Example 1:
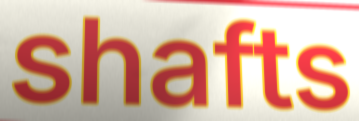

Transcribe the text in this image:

shafts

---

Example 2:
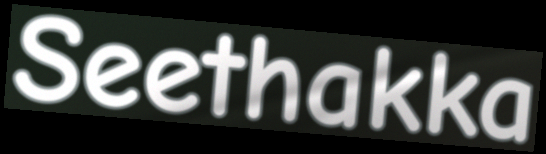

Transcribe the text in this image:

Seethakka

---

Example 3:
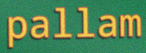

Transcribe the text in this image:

pallam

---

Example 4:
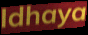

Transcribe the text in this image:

Idhaya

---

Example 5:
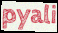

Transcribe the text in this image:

pyali